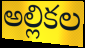
అల్లికల